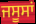
ਜਸੂਸਾਂ